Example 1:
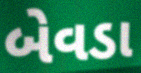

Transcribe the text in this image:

બેવડા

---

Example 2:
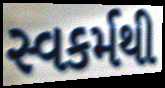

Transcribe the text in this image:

સ્વકર્મથી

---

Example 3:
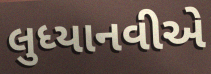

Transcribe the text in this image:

લુધ્યાનવીએ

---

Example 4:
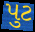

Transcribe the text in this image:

પુટ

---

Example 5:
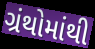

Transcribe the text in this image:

ગ્રંથોમાંથી